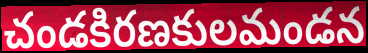
చండకిరణకులమండన